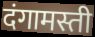
दंगामस्ती